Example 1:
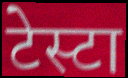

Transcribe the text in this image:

टेस्टा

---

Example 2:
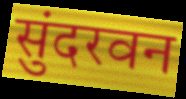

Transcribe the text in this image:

सुंदरवन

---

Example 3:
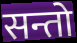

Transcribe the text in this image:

सन्तो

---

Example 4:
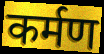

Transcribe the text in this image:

कर्मण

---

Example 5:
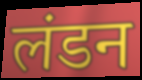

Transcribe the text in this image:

लंडन